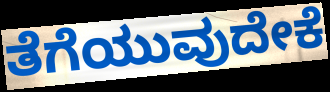
ತೆಗೆಯುವುದೇಕೆ